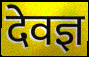
देवज्ञ